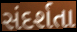
સંદર્શતા